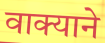
वाक्याने